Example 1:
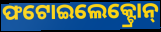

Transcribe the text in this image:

ଫଟୋଇଲେକ୍ଟ୍ରୋନ୍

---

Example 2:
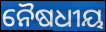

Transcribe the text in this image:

ନୈଷଧୀୟ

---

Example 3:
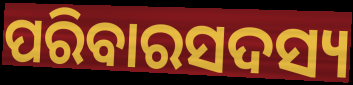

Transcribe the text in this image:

ପରିବାରସଦସ୍ୟ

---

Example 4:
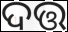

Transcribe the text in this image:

ଦତ୍ତ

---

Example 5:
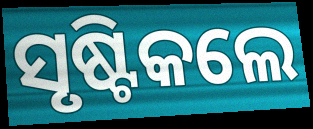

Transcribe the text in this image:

ସୃଷ୍ଟିକଲେ